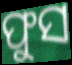
ଫୁସ